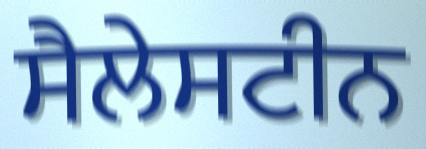
ਸੈਲੇਸਟੀਨ